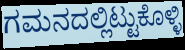
ಗಮನದಲ್ಲಿಟ್ಟುಕೊಳ್ಳಿ